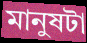
মানুষটা